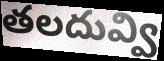
తలదువ్వి